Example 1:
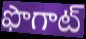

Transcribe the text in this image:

ఫొగాట్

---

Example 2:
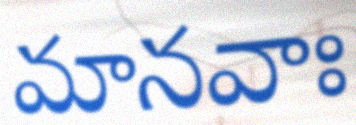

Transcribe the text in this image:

మానవాః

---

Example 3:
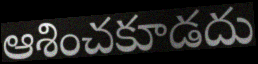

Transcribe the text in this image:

ఆశించకూడదు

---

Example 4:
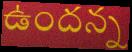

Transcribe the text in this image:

ఉందన్న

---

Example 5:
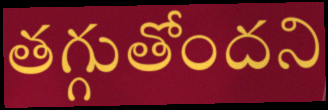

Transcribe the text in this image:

తగ్గుతోందని